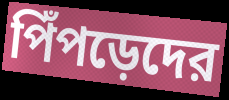
পিঁপড়েদের